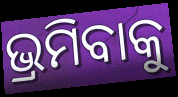
ଭ୍ରମିବାକୁ